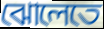
ঝোলেতে